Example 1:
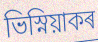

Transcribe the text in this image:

ভিস্নিয়াকৰ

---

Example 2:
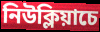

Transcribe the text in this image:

নিউক্লিয়াচে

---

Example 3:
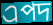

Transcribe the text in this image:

এপদ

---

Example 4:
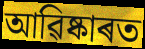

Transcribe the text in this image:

আৱিষ্কাৰত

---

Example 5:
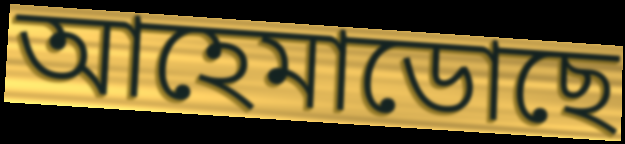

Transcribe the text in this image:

আহেমাডোছে